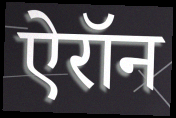
ऐरॉन